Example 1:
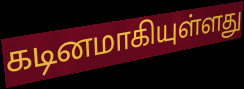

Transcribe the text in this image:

கடினமாகியுள்ளது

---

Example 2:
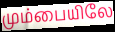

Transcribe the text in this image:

மும்பையிலே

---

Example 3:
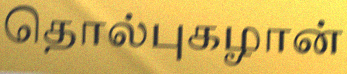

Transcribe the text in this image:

தொல்புகழான்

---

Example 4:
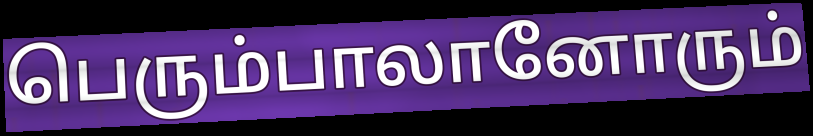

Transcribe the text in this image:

பெரும்பாலானோரும்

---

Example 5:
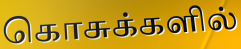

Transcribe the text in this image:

கொசுக்களில்